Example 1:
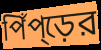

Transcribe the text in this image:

পিঁপ্‌ড়ের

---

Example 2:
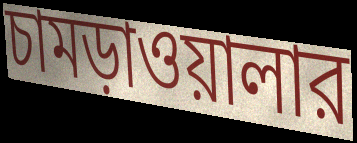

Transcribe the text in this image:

চামড়াওয়ালার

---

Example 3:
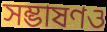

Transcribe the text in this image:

সম্ভাষণও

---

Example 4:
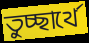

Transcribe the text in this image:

তুচ্ছার্থে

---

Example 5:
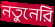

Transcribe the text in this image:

নতুনেরি